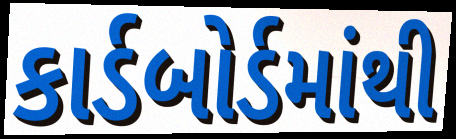
કાર્ડબોર્ડમાંથી